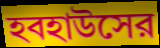
হবহাউসের